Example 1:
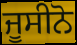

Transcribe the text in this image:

ਜੂਸੀਨੋ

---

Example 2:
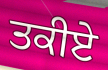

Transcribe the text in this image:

ਤਕੀਏ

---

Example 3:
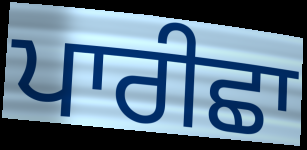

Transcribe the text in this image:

ਪਾਰੀਛਾ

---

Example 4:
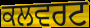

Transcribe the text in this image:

ਕਲਵਰਟ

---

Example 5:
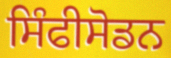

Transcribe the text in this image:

ਸਿੰਫੀਸੋਡਨ